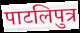
पाटलिपुत्र